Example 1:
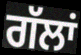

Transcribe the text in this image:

ਗੱਲਾਂ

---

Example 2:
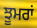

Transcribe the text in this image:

ਝੂਮਰਾਂ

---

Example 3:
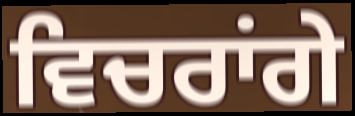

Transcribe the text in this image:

ਵਿਚਰਾਂਗੇ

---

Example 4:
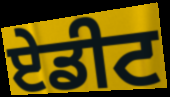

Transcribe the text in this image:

ਏਡੀਟ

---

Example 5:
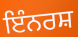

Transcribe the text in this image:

ਇੰਨਰਸ਼